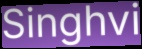
Singhvi